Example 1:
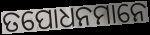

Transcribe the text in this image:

ତପୋଧନମାନେ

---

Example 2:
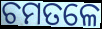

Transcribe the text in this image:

ଚମତଳେ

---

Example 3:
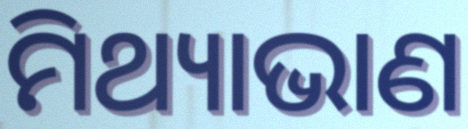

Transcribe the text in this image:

ମିଥ୍ୟାଭାଣ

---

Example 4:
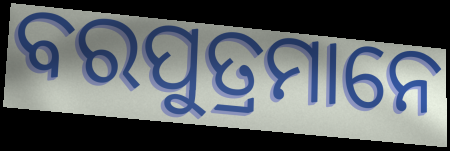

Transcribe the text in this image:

ବରପୁତ୍ରମାନେ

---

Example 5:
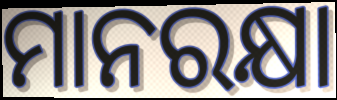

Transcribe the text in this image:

ମାନରକ୍ଷା